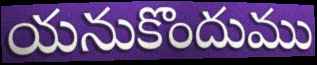
యనుకొందుము